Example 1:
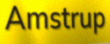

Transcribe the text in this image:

Amstrup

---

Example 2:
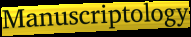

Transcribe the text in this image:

Manuscriptology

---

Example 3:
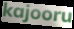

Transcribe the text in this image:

kajooru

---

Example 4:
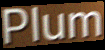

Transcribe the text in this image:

Plum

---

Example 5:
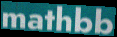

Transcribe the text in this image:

mathbb